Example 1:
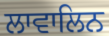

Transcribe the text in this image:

ਲਾਵਾਲਿਨ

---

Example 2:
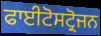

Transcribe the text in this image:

ਫਾਈਟੋਸਟ੍ਰੋਜਨ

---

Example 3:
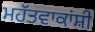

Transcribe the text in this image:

ਮਹੱਤਵਾਕਾਂਸ਼ੀ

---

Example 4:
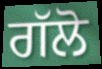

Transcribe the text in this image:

ਗੱਲੋ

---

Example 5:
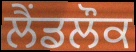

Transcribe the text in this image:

ਲੈਂਡਲੌਕ